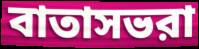
বাতাসভরা